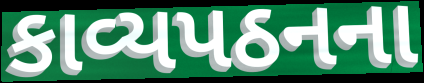
કાવ્યપઠનના